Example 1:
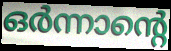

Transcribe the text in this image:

ഒർന്നാന്റെ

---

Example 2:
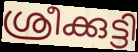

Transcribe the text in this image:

ശ്രീക്കുട്ടി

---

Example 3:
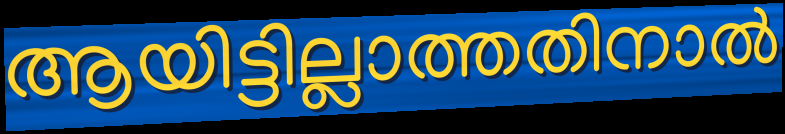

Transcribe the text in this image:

ആയിട്ടില്ലാത്തതിനാൽ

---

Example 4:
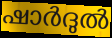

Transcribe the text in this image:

ഷാർദുൽ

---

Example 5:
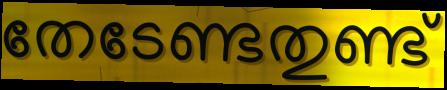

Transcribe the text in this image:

തേടേണ്ടതുണ്ട്